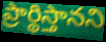
ప్రార్థిస్తానని